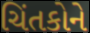
ચિંતકોને